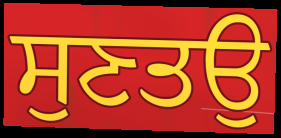
ਸੁਣਤਉ